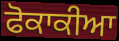
ਫੋਕਾਕੀਆ